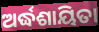
ଅର୍ଦ୍ଧଶାୟିତା